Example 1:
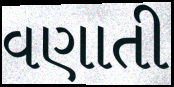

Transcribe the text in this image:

વણાતી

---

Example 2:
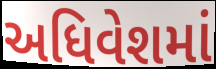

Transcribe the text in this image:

અધિવેશમાં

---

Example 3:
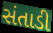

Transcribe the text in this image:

સંતાડી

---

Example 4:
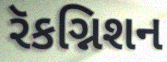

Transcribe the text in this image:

રૅકગ્નિશન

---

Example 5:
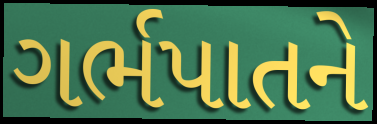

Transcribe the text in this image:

ગર્ભપાતને